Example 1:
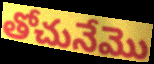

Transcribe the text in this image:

తోచునేమొ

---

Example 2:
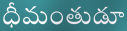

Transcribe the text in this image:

ధీమంతుడూ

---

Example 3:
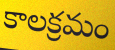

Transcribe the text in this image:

కాలక్రమం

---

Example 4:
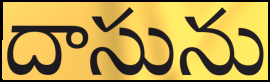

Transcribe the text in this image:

దాసును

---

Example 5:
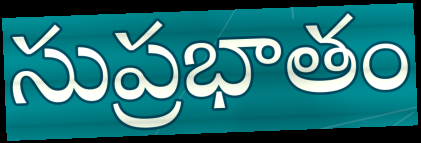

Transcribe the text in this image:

సుప్రభాతం